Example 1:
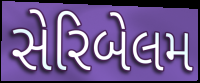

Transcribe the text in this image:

સેરિબેલમ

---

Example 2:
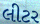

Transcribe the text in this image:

લીટર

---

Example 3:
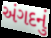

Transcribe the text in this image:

અંગદનું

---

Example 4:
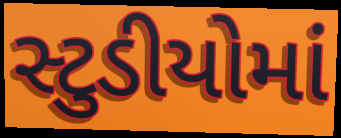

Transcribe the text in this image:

સ્ટુડીયોમાં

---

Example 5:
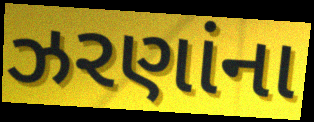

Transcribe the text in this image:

ઝરણાંના